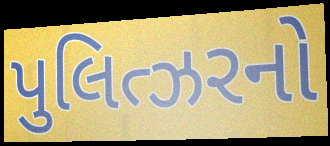
પુલિત્ઝરનો